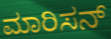
ಮಾರಿಸನ್